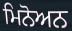
ਮਿਨੋਅਨ